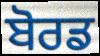
ਬੋਰਡ